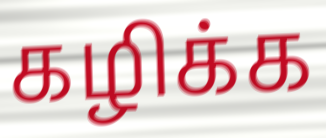
கழிக்க